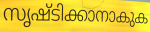
സൃഷ്ടിക്കാനാകുക